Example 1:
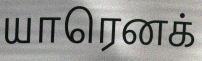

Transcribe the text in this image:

யாரெனக்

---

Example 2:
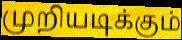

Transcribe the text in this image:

முறியடிக்கும்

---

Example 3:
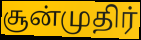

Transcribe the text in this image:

சூன்முதிர்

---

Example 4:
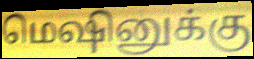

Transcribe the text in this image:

மெஷினுக்கு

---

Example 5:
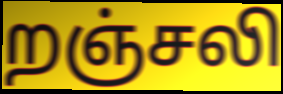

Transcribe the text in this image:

றஞ்சலி